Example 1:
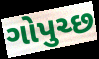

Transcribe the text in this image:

ગોપુચ્છ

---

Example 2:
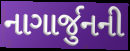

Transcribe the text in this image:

નાગાર્જુનની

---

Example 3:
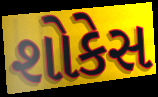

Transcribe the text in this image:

શોકેસ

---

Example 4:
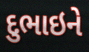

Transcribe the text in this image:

દુભાઇને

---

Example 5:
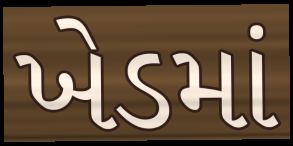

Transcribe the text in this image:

ખેડમાં